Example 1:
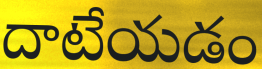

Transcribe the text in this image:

దాటేయడం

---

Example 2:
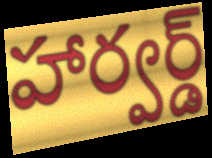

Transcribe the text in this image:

హార్వర్డ్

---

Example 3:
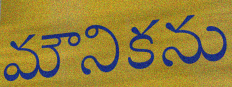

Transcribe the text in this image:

మౌనికను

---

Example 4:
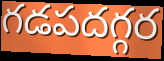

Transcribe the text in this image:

గడపదగ్గర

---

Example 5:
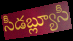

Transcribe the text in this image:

సీడబ్ల్యూసీ